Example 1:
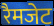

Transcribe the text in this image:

रैमजेट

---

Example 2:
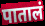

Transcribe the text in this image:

पातालं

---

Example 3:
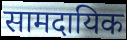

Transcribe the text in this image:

सामदायिक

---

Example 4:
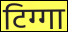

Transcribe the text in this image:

टिग्गा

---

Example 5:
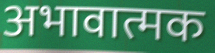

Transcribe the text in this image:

अभावात्मक